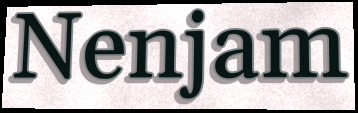
Nenjam